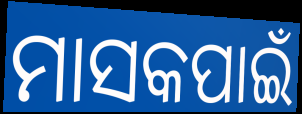
ମାସକପାଇଁ